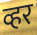
व्हर